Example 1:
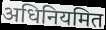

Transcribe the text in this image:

अधिनियमित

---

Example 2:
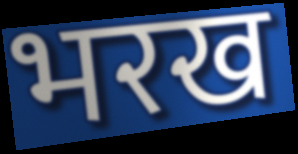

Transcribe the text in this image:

भरख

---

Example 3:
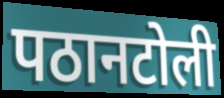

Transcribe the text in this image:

पठानटोली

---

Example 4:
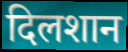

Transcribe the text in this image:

दिलशान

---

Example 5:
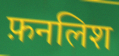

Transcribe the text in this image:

फ़नलिश